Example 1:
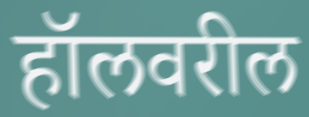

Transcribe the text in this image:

हॉलवरील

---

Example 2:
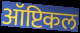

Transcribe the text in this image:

ऑप्टिकल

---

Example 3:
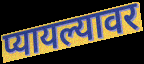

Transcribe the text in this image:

प्यायल्यावर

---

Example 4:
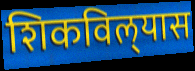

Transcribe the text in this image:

शिकविल्यास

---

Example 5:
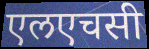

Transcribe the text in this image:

एलएचसी